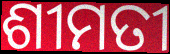
ଶୀମତୀ